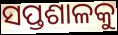
ସପ୍ତଶାଳକୁ